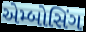
એમ્બોસિંગ